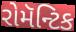
રોમૅન્ટિક